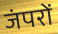
जंपरों